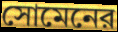
সোমেনের